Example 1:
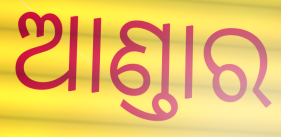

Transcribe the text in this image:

ଆଣ୍ଡାର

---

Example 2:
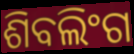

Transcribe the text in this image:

ଶିବଲିଂଗ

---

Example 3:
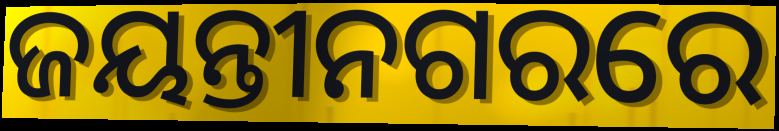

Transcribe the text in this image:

ଜୟନ୍ତୀନଗରରେ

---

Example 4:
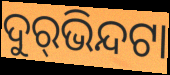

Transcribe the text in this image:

ଦୁର୍‌ଭିନ୍ଦଟା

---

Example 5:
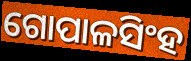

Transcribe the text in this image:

ଗୋପାଳସିଂହ